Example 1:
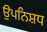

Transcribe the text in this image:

ਉਪਨਿਸ਼ਧ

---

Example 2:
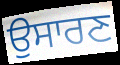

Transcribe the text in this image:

ਉਸਾਰਣ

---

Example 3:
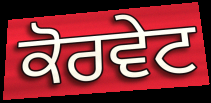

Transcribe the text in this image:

ਕੋਰਵੇਟ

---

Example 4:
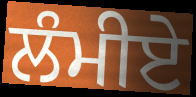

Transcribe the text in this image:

ਲੰਮੀਏ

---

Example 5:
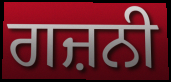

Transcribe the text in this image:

ਗਜ਼ਨੀ